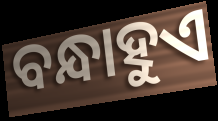
ବନ୍ଧାହୁଏ